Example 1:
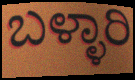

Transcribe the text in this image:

ಬಳ್ಳಾರಿ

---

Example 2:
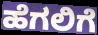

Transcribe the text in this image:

ಹೆಗಲಿಗೆ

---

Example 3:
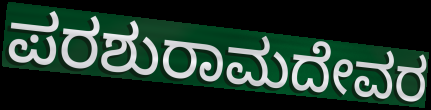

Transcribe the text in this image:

ಪರಶುರಾಮದೇವರ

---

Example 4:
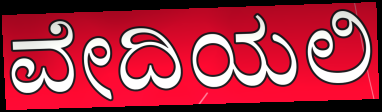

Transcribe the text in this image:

ವೇದಿಯಲಿ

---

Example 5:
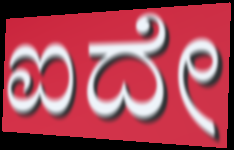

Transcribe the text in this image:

ಐದೇ